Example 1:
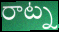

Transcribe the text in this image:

రాట్న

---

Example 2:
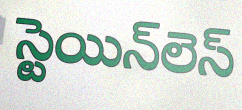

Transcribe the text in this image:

స్టెయిన్‌లెస్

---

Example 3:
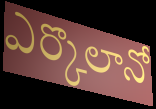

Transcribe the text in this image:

ఎర్కొలానో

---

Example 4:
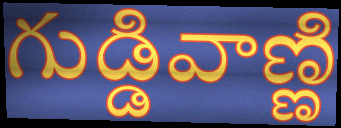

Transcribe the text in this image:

గుడ్డివాణ్ణి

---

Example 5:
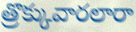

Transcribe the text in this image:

త్రొక్కువారలారా